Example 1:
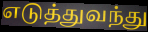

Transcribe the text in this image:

எடுத்துவந்து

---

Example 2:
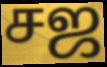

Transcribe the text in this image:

சஜ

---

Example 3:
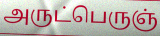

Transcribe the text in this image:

அருட்பெருஞ்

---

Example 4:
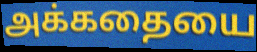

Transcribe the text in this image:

அக்கதையை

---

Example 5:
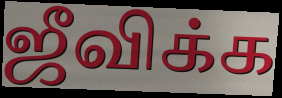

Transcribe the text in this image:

ஜீவிக்க